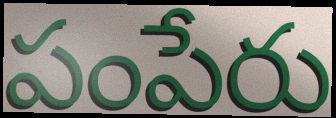
పంపేరు